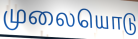
முலையொடு